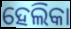
ହେଲିକା